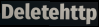
Deletehttp